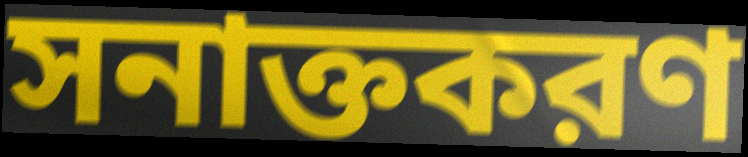
সনাক্তকরণ